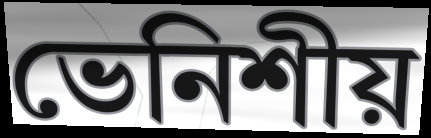
ভেনিশীয়